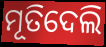
ମୂତିଦେଲି